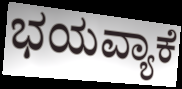
ಭಯವ್ಯಾಕೆ